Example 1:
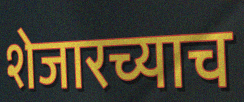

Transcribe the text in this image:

शेजारच्याच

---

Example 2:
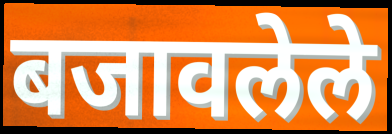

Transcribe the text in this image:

बजावलेले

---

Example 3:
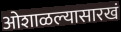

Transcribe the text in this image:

ओशाळल्यासारखं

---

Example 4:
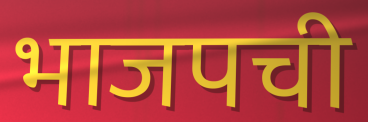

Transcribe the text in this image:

भाजपची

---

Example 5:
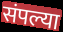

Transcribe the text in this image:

संपल्या